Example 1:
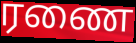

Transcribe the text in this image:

ரணை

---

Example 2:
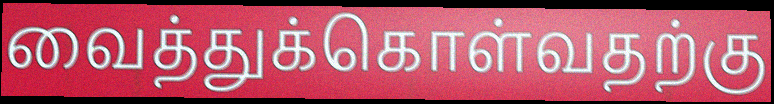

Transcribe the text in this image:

வைத்துக்கொள்வதற்கு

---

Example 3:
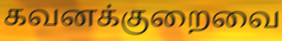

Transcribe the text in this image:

கவனக்குறைவை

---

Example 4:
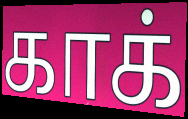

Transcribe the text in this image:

காக்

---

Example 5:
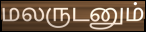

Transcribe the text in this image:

மலருடனும்